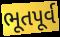
ભૂતપૂર્વ